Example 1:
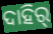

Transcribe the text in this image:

ଦାହିର୍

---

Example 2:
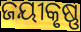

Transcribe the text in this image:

ଜୟୀକୃଷ୍ଣ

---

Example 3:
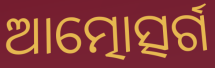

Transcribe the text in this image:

ଆତ୍ମୋତ୍ସର୍ଗ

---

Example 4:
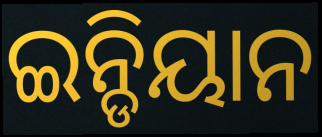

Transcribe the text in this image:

ଇନ୍ଡିୟାନ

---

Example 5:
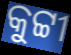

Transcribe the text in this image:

କୁଟ୍ଟୀ